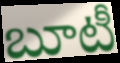
బూటీ